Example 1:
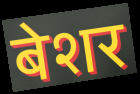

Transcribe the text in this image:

बेशर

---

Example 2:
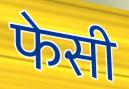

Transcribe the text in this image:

फेसी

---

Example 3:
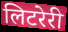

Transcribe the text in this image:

लिटरेरी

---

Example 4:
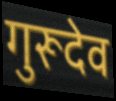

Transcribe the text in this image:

गुरूदेव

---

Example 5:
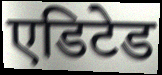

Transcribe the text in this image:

एडिटेड